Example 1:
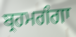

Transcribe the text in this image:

ਬ੍ਰਹਮਗੰਗਾ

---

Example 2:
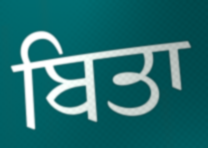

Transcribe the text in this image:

ਬਿਤਾ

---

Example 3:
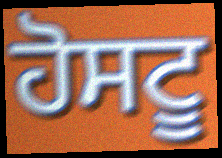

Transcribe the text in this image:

ਹੋਸਟੂ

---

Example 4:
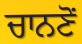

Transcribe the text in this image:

ਚਾਨਣੋਂ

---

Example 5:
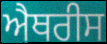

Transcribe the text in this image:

ਐਥਰੀਸ